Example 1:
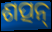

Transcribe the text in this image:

ଶତ୍ପନ୍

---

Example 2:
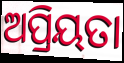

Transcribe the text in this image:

ଅପ୍ରିୟତା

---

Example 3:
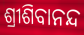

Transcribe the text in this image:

ଶ୍ରୀଶିବାନନ୍ଦ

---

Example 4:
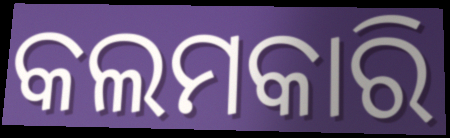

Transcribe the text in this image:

କଲମକାରି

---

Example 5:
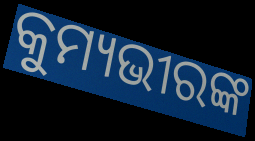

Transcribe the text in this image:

କୁମ୍ୟଭୀରଙ୍କ